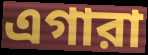
এগারা